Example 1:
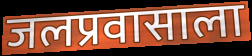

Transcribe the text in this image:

जलप्रवासाला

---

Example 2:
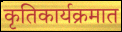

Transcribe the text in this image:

कृतिकार्यक्रमात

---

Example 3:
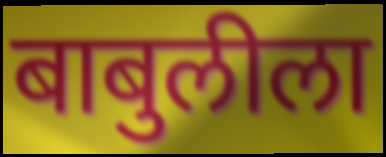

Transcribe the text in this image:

बाबुलीला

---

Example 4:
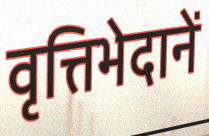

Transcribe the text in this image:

वृत्तिभेदानें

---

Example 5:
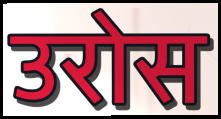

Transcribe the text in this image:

उरोस